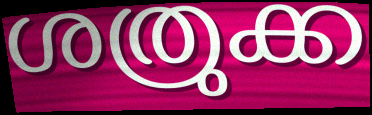
ശത്രുക്ക